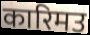
कारिमउ